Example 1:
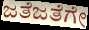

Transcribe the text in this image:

ಜತೆಜತೆಗೇ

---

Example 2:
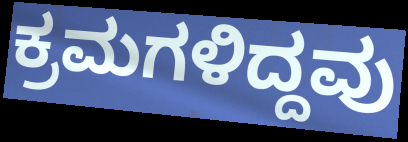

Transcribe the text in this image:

ಕ್ರಮಗಳಿದ್ದವು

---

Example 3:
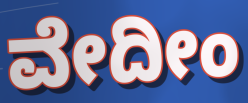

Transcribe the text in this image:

ವೇದೀಂ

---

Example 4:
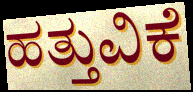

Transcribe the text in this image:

ಹತ್ತುವಿಕೆ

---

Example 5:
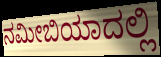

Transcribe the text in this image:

ನಮೀಬಿಯಾದಲ್ಲಿ